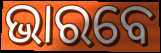
ଭାରବେ